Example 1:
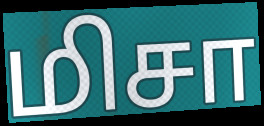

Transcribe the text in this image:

மிசா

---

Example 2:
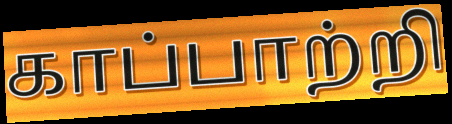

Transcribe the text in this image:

காப்பாற்றி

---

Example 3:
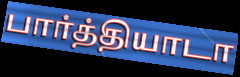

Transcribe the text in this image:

பார்த்தியாடா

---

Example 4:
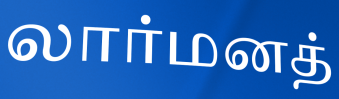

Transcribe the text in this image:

லார்மனத்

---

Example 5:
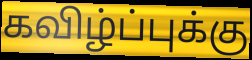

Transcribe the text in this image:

கவிழ்ப்புக்கு